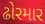
ઢોરમાર